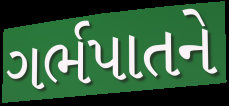
ગર્ભપાતને